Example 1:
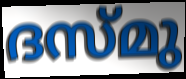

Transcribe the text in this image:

ദസ്മു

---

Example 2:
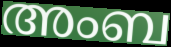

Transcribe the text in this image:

അംബ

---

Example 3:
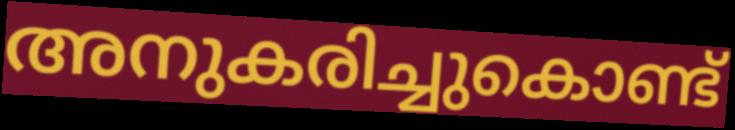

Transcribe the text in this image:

അനുകരിച്ചുകൊണ്ട്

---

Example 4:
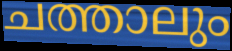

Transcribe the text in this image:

ചത്താലും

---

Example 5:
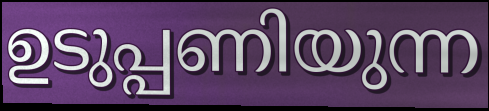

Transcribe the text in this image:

ഉടുപ്പണിയുന്ന